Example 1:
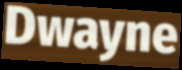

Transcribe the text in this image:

Dwayne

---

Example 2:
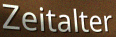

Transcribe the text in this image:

Zeitalter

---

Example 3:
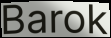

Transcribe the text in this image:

Barok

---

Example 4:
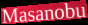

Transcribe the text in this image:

Masanobu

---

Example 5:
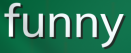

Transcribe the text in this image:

funny